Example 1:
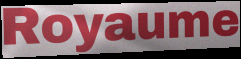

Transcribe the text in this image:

Royaume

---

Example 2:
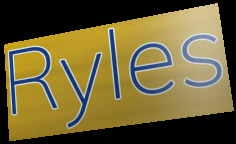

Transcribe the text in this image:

Ryles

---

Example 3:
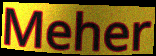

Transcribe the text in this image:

Meher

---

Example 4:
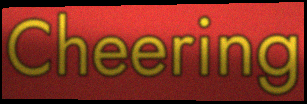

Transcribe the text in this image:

Cheering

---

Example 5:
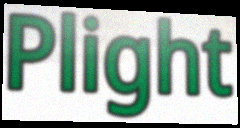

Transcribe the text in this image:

Plight